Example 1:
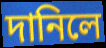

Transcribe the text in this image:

দানিলে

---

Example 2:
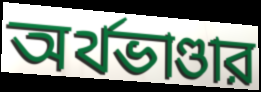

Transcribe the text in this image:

অর্থভাণ্ডার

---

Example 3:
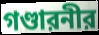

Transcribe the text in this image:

গণ্ডারনীর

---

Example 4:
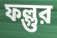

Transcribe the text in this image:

ফল্গুর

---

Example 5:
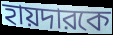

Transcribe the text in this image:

হায়দারকে